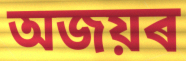
অজয়ৰ